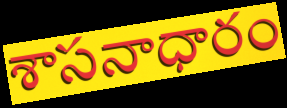
శాసనాధారం